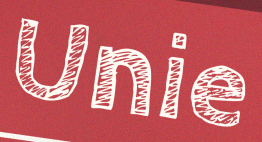
Unie